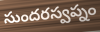
సుందరస్వప్నం